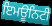
ਇਮਊਨਿਟੀ